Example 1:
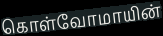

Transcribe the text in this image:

கொள்வோமாயின்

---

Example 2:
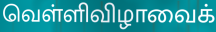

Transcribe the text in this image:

வெள்ளிவிழாவைக்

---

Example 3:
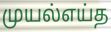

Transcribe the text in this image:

முயல்எய்த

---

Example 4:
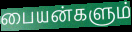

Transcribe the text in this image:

பையன்களும்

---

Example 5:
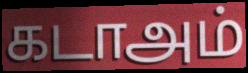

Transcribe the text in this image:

கடாஅம்